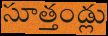
సూత్తండ్లు